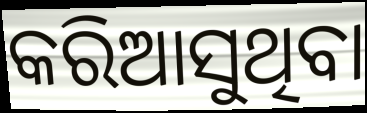
କରିଆସୁଥିବା